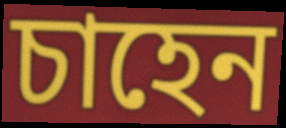
চাহেন